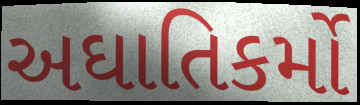
અઘાતિકર્મો